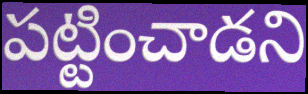
పట్టించాడని